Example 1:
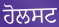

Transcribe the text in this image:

ਹੋਲਸਟ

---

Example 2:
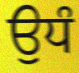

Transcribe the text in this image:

ਉਧੰ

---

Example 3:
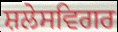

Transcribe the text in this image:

ਸ਼ਲੇਸਵਿਗਰ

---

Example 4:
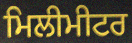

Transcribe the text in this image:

ਮਿਲੀਮੀਟਰ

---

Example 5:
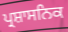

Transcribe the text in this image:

ਪ੍ਰਸ਼ਾਸਨਿਕ